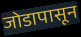
जोडापासून